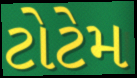
ટોટેમ